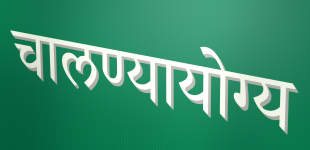
चालण्यायोग्य